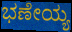
ಭಣೇಯ್ಯ